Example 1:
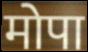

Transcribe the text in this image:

मोपा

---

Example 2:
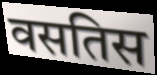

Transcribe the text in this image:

वसतिस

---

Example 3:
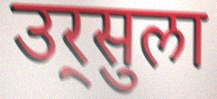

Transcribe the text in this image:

उर्सुला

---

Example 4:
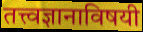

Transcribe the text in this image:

तत्त्वज्ञानाविषयी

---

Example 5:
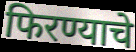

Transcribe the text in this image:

फिरण्याचे